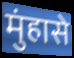
मुंहासे